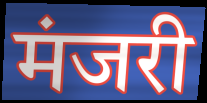
मंजरी